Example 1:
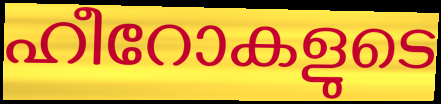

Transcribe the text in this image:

ഹീറോകളുടെ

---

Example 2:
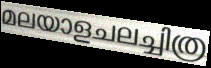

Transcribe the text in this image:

മലയാളചലച്ചിത്ര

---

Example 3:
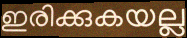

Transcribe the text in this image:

ഇരിക്കുകയല്ല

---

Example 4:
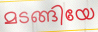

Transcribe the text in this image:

മടങ്ങിയേ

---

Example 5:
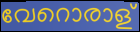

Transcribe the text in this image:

വേറൊരാള്